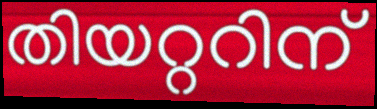
തിയറ്ററിന്